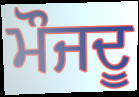
ਮੌਜਦੂ